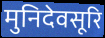
मुनिदेवसूरि